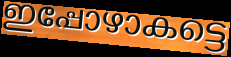
ഇപ്പോഴാകട്ടെ